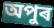
অপুৰ